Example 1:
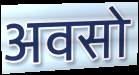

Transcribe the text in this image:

अवसो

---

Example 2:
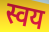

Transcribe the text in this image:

स्वय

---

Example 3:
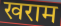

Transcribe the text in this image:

खराम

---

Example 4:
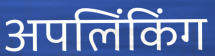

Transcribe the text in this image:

अपलिंकिंग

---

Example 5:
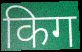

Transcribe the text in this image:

किग